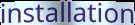
installation